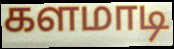
களமாடி